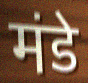
मंडे